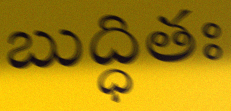
బుద్ధితః